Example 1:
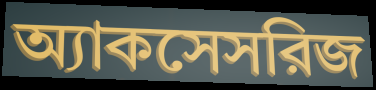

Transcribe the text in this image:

অ্যাকসেসরিজ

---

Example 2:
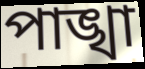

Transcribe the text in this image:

পাঙ্খা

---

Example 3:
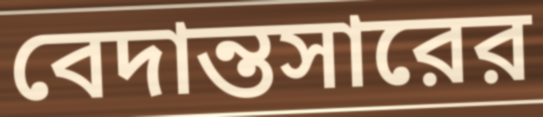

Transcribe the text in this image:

বেদান্তসারের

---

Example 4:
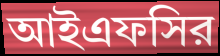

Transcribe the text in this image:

আইএফসির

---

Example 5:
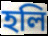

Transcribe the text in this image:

হলি